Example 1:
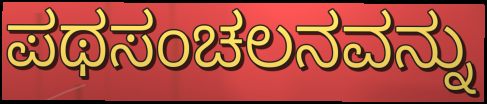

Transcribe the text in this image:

ಪಥಸಂಚಲನವನ್ನು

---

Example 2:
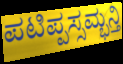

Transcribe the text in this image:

ಪಟಿಪ್ಪಸ್ಸಮ್ಭನ್ತಿ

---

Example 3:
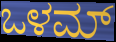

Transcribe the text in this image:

ಒಳಮ್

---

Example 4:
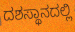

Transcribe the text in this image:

ದಶಸ್ಥಾನದಲ್ಲಿ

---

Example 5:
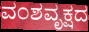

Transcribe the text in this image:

ವಂಶವೃಕ್ಷದ